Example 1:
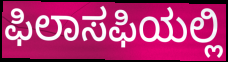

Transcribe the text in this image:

ಫಿಲಾಸಫಿಯಲ್ಲಿ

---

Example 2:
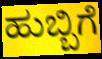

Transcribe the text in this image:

ಹುಬ್ಬಿಗೆ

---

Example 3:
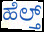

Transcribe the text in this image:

ಹೆಲ್ತ್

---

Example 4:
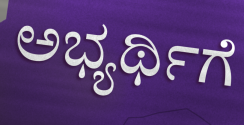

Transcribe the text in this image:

ಅಭ್ಯರ್ಥಿಗೆ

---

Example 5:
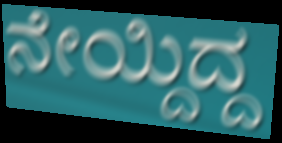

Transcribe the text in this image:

ನೇಯ್ದಿದ್ದ